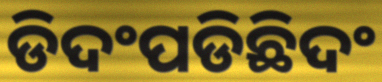
ଡିଦଂପଡିଛିଦଂ